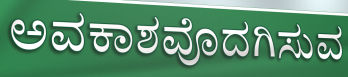
ಅವಕಾಶವೊದಗಿಸುವ